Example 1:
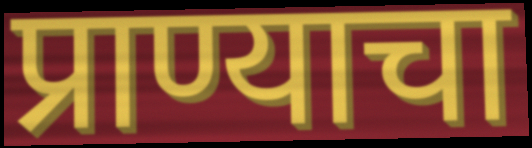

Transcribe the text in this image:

प्राण्याचा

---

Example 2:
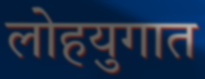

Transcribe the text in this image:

लोहयुगात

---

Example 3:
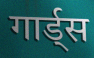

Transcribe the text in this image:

गार्ड्स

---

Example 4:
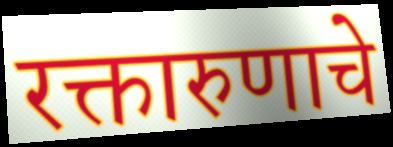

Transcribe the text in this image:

रक्तारुणाचे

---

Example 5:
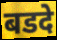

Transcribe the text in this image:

बडदे